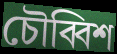
চৌব্বিশ